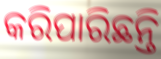
କରିପାରିଛନ୍ତି